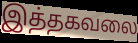
இத்தகவலை